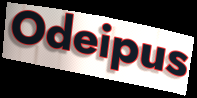
Odeipus